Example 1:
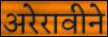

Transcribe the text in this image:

अरेरावीने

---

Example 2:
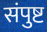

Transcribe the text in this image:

संपुष्ट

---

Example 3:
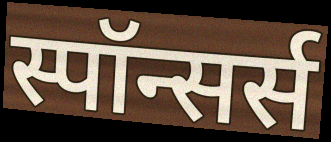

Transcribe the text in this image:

स्पॉन्सर्स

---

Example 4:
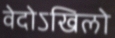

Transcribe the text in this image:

वेदोऽखिलो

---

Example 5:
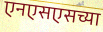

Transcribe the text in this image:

एनएसएसच्या